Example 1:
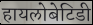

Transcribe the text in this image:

हायलोबेटिडी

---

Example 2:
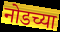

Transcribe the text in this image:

नोडच्या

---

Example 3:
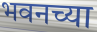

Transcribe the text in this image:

भवनच्या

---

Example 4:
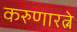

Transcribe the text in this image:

करुणारत्ने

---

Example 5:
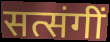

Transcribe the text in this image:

सत्संगीं